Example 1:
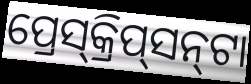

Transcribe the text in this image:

ପ୍ରେସ୍‌କ୍ରିପ୍‌ସନ୍‌ଟା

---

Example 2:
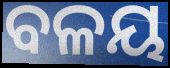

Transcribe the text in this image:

ବଳୟ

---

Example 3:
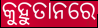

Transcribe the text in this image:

କୁହୁତାନରେ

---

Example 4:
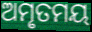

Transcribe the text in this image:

ଅମୃତମୟ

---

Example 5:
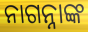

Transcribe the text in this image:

ନାଗନ୍ନାଙ୍କ